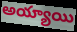
అయ్యాయి